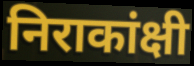
निराकांक्षी